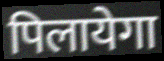
पिलायेगा